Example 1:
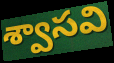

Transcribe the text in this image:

శ్వాసవి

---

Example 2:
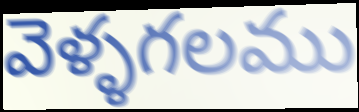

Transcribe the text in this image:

వెళ్ళగలము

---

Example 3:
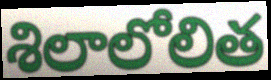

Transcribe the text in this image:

శిలాలోలిత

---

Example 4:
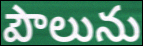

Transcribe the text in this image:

పౌలును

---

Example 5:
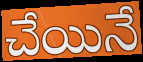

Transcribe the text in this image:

చేయినే